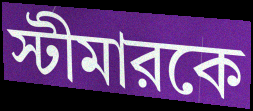
স্টীমারকে